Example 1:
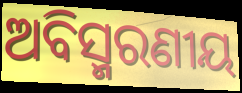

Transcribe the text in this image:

ଅବିସ୍ମରଣୀୟ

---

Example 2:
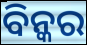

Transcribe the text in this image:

ବିନ୍କର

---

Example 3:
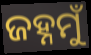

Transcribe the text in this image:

ଜହ୍ନମୁଁ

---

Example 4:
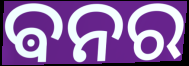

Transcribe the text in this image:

ଵନର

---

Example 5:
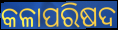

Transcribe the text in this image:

କଳାପରିଷଦ